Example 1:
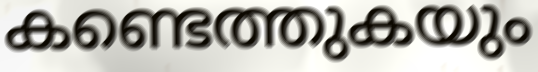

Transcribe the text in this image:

കണ്ടെത്തുകയും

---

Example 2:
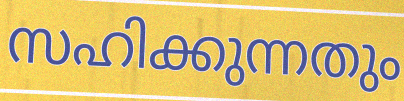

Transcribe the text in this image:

സഹിക്കുന്നതും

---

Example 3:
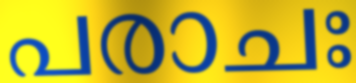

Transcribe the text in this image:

പരാചഃ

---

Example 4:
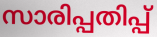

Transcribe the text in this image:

സാരിപ്പതിപ്പ്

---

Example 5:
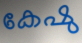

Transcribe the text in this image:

കേഷു